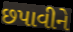
છપાવીને